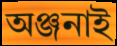
অঞ্জনাই